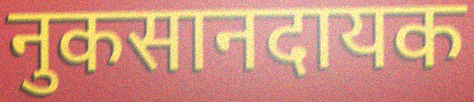
नुकसानदायक